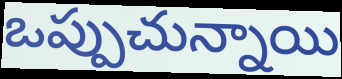
ఒప్పుచున్నాయి